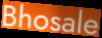
Bhosale